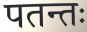
पतन्तः